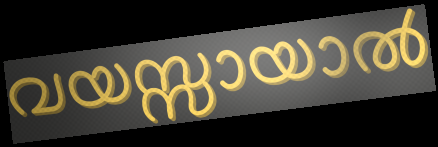
വയസ്സായാൽ